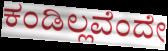
ಕಂಡಿಲ್ಲವೆಂದೇ